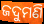
ଜଦୁମଣି